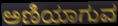
ಅಣಿಯಾಗುವ